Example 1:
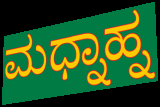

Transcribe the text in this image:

ಮಧ್ನಾಹ್ನ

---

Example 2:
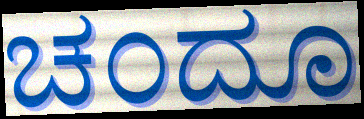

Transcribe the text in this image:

ಚಂದೂ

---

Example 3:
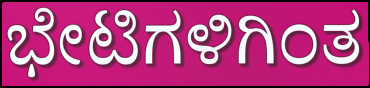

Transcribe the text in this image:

ಭೇಟಿಗಳಿಗಿಂತ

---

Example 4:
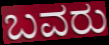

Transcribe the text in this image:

ಬವರು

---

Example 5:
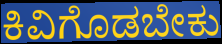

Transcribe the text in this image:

ಕಿವಿಗೊಡಬೇಕು